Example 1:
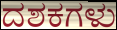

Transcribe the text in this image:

ದಶಕಗಳು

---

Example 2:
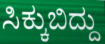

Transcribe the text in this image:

ಸಿಕ್ಕುಬಿದ್ದು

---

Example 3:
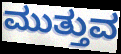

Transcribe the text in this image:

ಮುತ್ತುವ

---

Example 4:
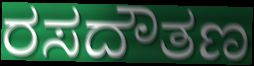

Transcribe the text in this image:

ರಸದೌತಣ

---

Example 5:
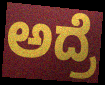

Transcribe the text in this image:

ಅದ್ರೆ